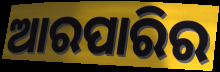
ଆରପାରିର